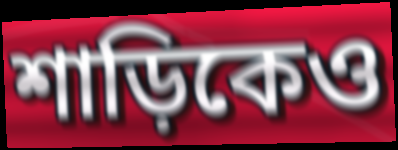
শাড়িকেও